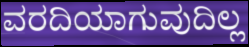
ವರದಿಯಾಗುವುದಿಲ್ಲ